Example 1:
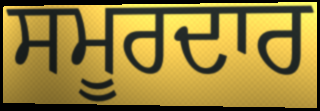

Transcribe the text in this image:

ਸਮੂਰਦਾਰ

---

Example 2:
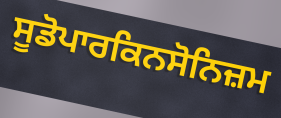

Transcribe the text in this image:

ਸੂਡੋਪਾਰਕਿਨਸੋਨਿਜ਼ਮ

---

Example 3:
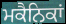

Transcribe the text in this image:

ਮਕੈਨਿਕਾਂ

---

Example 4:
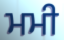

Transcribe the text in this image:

ਮਮੀ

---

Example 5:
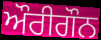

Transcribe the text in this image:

ਔਰੀਗੌਨ